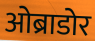
ओब्राडोर